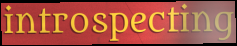
introspecting